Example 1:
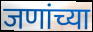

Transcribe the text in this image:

जणांच्या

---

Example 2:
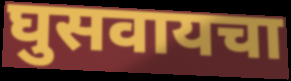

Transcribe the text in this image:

घुसवायचा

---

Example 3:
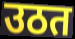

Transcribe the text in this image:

उठत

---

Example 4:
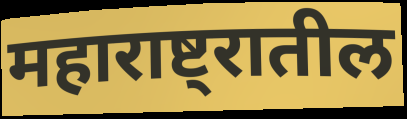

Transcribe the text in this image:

महाराष्ट्रातील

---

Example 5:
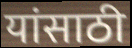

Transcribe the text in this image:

यांसाठी